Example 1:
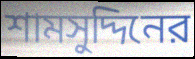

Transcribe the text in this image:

শামসুদ্দিনের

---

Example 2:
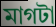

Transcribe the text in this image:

মাগটা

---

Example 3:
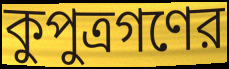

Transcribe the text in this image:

কুপুত্রগণের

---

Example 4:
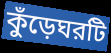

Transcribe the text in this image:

কুঁড়েঘরটি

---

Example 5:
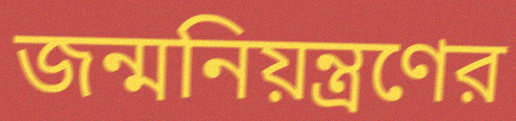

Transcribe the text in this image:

জন্মনিয়ন্ত্রণের